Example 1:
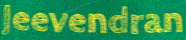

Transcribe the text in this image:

Jeevendran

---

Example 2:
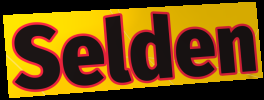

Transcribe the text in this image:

Selden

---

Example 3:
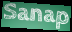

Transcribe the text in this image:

Sanap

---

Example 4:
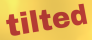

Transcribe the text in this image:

tilted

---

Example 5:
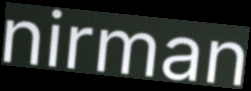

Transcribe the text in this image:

nirman